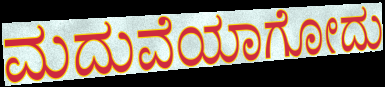
ಮದುವೆಯಾಗೋದು